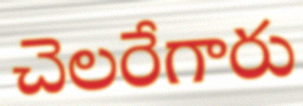
చెలరేగారు